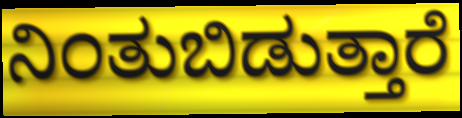
ನಿಂತುಬಿಡುತ್ತಾರೆ